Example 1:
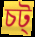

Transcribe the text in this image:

চট্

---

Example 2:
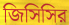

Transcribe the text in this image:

জিসিসির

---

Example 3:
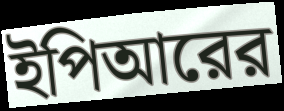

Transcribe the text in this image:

ইপিআরের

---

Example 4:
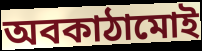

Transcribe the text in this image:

অবকাঠামোই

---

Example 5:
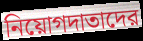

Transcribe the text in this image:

নিয়োগদাতাদের